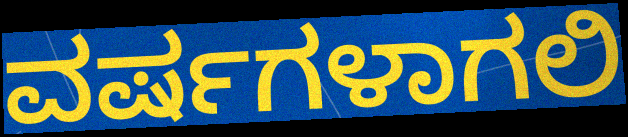
ವರ್ಷಗಳಾಗಲಿ